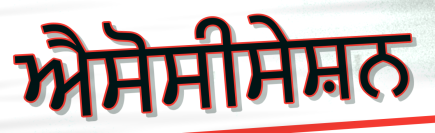
ਐਸੋਸੀਸੇਸ਼ਨ